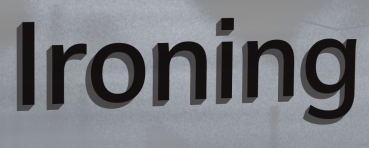
Ironing